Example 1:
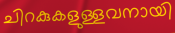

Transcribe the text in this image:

ചിറകുകളുള്ളവനായി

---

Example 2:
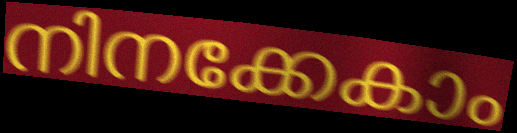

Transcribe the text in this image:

നിനക്കേകാം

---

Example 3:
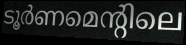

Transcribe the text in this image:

ടൂർണമെന്റിലെ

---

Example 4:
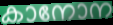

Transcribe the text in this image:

കാനോന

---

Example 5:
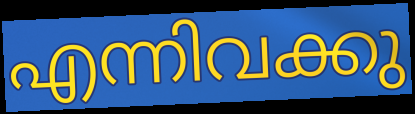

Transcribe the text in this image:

എന്നിവക്കു